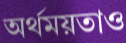
অর্থময়তাও